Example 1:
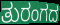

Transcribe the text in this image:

ತುರಂಗದ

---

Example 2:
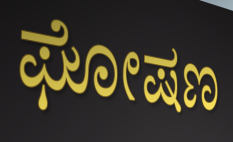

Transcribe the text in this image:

ಘೋಷಣ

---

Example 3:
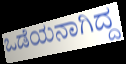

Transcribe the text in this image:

ಒಡೆಯನಾಗಿದ್ದ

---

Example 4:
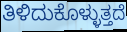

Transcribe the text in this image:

ತಿಳಿದುಕೊಳ್ಳುತ್ತದೆ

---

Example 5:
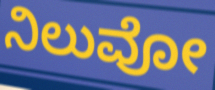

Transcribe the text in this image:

ನಿಲುವೋ